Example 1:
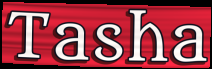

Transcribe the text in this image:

Tasha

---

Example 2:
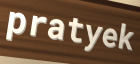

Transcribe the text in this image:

pratyek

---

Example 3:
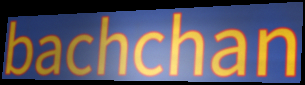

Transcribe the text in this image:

bachchan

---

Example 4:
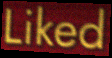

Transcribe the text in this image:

Liked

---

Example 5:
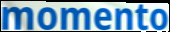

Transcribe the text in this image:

momento